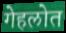
गेहलोत